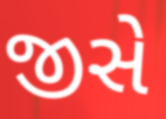
જીસે